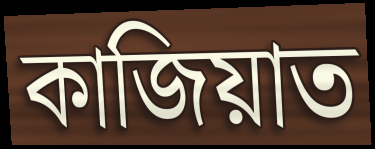
কাজিয়াত